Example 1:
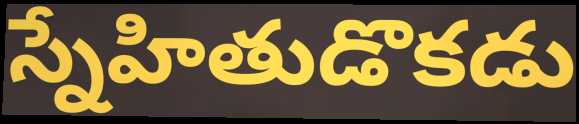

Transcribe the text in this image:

స్నేహితుడొకడు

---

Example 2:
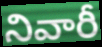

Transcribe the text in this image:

నివారీ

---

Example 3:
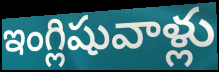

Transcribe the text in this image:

ఇంగ్లిషువాళ్లు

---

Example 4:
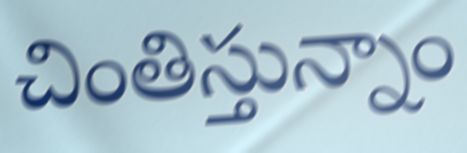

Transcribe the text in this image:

చింతిస్తున్నాం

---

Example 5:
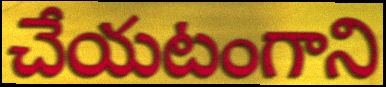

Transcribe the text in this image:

చేయటంగాని